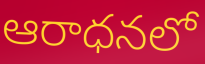
ఆరాధనలో